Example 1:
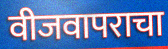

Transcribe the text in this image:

वीजवापराचा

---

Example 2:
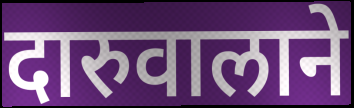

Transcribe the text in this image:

दारुवालाने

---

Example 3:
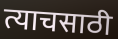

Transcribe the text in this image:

त्याचसाठी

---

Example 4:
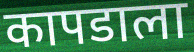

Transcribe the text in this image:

कापडाला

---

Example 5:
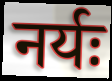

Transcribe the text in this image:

नर्यः